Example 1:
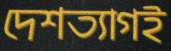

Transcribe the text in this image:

দেশত্যাগই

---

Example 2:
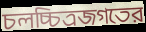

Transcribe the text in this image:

চলচ্চিত্রজগতের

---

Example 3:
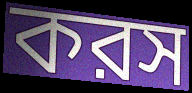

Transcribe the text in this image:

করস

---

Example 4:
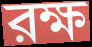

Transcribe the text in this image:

রক্ষ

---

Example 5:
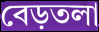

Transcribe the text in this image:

বেড়তলা